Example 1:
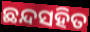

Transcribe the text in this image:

ଛନ୍ଦସହିତ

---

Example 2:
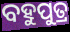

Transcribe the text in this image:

ବହୁପୁତ୍ର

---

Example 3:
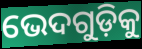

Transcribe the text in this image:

ଭେଦଗୁଡ଼ିକୁ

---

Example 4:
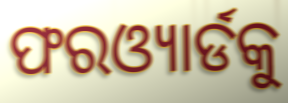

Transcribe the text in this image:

ଫରଓ୍ୟାର୍ଡକୁ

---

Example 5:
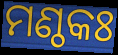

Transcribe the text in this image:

ମଣ୍ଠକଃ